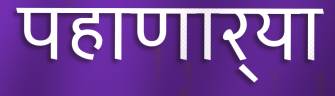
पहाणार्‍या